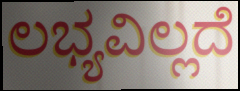
ಲಭ್ಯವಿಲ್ಲದೆ